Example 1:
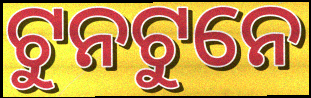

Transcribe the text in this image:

ଟୁନଟୁନେ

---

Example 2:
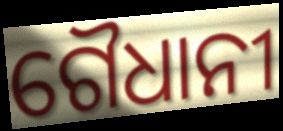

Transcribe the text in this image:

ଗୈଧାନୀ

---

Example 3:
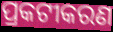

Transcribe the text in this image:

ପ୍ରକଟୀକରଣ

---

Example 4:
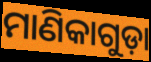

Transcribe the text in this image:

ମାଣିକାଗୁଡ଼ା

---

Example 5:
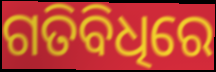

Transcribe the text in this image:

ଗତିବିଧିରେ